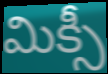
మిక్సీ